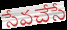
సేవచేసే